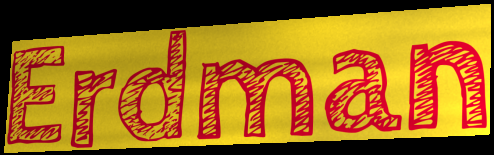
Erdman